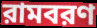
রামবরণ